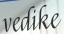
vedike